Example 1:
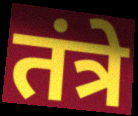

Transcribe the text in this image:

तंत्रे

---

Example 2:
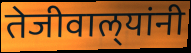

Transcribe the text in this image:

तेजीवाल्यांनी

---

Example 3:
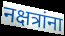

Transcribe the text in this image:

नक्षत्रांना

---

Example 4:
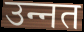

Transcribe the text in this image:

उन्‍नत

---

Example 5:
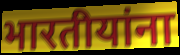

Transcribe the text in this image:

भारतीयांना